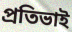
প্রতিভাই